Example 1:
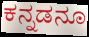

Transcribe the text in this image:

ಕನ್ನಡನೂ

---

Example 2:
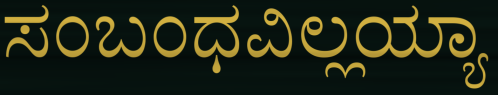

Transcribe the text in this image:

ಸಂಬಂಧವಿಲ್ಲಯ್ಯಾ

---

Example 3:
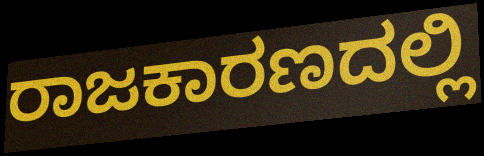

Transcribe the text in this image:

ರಾಜಕಾರಣದಲ್ಲಿ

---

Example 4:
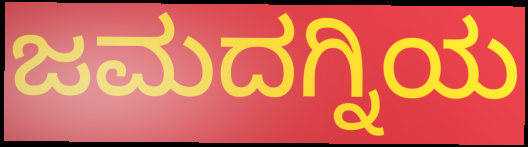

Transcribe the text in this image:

ಜಮದಗ್ನಿಯ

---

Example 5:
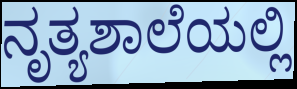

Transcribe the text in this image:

ನೃತ್ಯಶಾಲೆಯಲ್ಲಿ